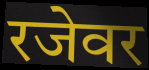
रजेवर